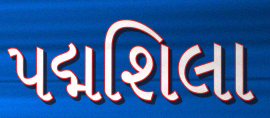
પદ્મશિલા